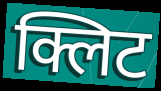
क्लिट